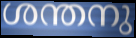
ശന്തനു